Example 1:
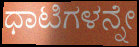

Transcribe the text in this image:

ಧಾಟಿಗಳನ್ನೇ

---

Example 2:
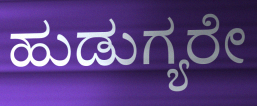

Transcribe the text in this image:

ಹುಡುಗ್ಯರೇ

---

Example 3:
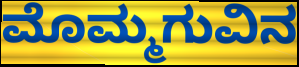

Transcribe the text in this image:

ಮೊಮ್ಮಗುವಿನ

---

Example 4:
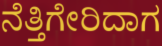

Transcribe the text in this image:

ನೆತ್ತಿಗೇರಿದಾಗ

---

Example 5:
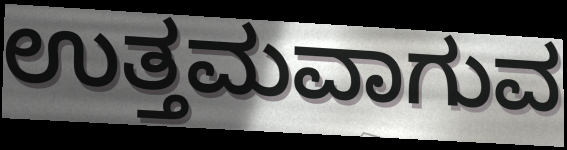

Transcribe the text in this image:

ಉತ್ತಮವಾಗುವ